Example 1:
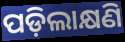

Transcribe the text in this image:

ପଡ଼ିଲାକ୍ଷଣି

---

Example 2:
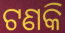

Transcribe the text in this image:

ଟଣକି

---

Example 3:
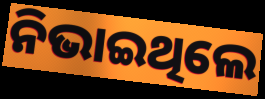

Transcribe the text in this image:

ନିଭାଇଥିଲେ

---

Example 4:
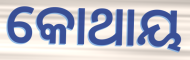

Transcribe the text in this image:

କୋଥାୟ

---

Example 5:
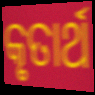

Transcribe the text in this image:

କୃତାର୍ଥ